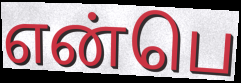
என்பெ